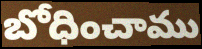
బోధించాము